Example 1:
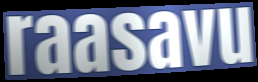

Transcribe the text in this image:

raasavu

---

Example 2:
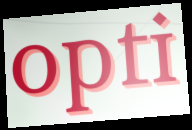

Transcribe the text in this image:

opti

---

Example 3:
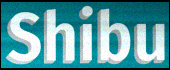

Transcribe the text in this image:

Shibu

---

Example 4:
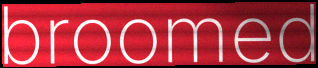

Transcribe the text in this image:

broomed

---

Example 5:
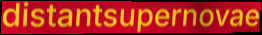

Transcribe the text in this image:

distantsupernovae